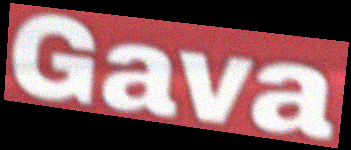
Gava